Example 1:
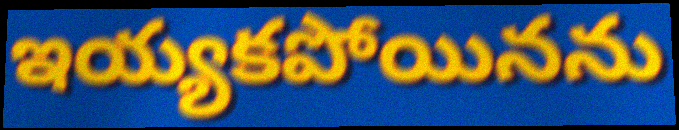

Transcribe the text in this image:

ఇయ్యకపోయినను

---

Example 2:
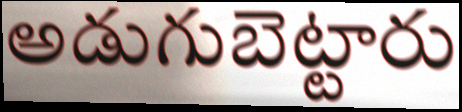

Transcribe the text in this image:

అడుగుబెట్టారు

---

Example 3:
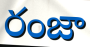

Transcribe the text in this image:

రంజా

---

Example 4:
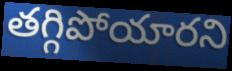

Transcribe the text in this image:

తగ్గిపోయారని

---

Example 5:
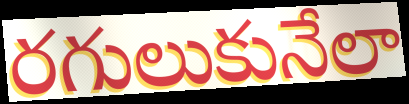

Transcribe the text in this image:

రగులుకునేలా